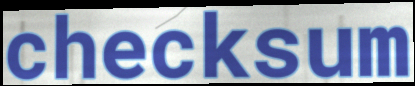
checksum